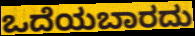
ಒದೆಯಬಾರದು